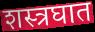
शस्त्रघात